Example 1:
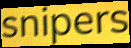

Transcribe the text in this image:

snipers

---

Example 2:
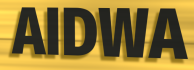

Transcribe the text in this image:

AIDWA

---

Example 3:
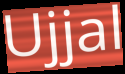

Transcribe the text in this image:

Ujjal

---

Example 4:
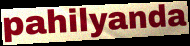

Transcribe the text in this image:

pahilyanda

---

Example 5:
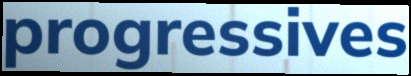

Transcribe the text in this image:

progressives